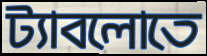
ট্যাবলোতে